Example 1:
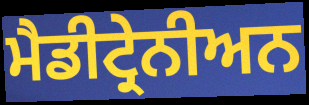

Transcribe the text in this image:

ਮੈਡੀਟ੍ਰੇਨੀਅਨ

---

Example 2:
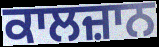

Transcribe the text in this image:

ਕਾਲਜ਼ਾਨ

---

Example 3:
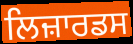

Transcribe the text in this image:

ਲਿਜ਼ਾਰਡਸ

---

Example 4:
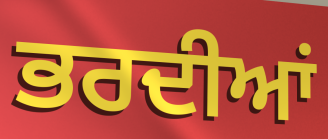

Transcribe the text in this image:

ਭਰਦੀਆਂ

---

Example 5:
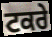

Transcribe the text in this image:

ਟਕਰੇ